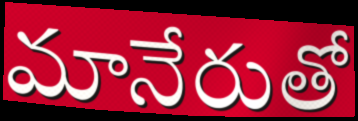
మానేరుతో